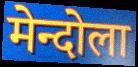
मेन्दोला